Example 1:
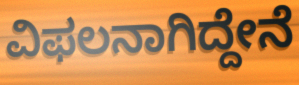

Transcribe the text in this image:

ವಿಫಲನಾಗಿದ್ದೇನೆ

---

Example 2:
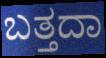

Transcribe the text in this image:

ಬತ್ತದಾ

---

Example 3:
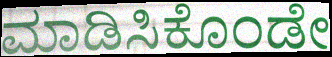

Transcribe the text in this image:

ಮಾಡಿಸಿಕೊಂಡೇ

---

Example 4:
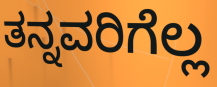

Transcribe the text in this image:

ತನ್ನವರಿಗೆಲ್ಲ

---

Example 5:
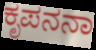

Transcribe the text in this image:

ಕೃಪನನಾ